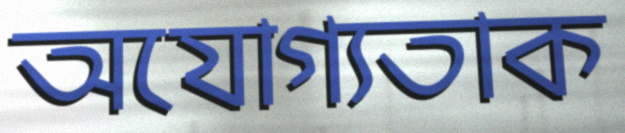
অযোগ্যতাক